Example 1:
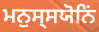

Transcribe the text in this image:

ਮਨੁਸ੍ਸਯੋਨਿਂ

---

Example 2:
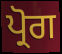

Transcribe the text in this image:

ਪ੍ਰੋਗ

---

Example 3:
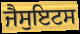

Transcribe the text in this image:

ਜੈਸੁਇਟਸ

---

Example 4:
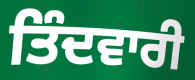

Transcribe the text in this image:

ਤਿੰਦਵਾਰੀ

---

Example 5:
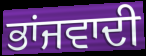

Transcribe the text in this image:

ਭਾਂਜਵਾਦੀ